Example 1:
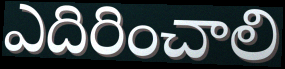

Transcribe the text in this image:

ఎదిరించాలి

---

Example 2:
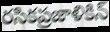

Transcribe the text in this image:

రసికప్రజాళికిన్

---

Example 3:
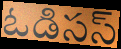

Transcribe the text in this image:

ఓడిసస్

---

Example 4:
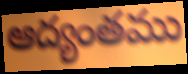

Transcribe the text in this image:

ఆద్యంతము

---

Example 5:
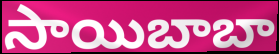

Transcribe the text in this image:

సాయిబాబా